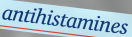
antihistamines